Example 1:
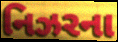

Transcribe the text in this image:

નિઝરના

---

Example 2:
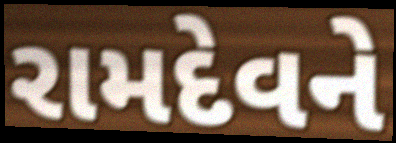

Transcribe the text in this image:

રામદેવને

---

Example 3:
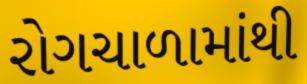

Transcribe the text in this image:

રોગચાળામાંથી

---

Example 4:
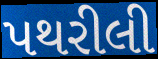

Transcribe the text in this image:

પથરીલી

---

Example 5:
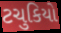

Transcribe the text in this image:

ટચુકિયો